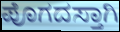
ಪೊಗದಸ್ತಾಗಿ